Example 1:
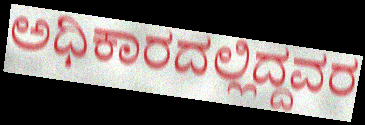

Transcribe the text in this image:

ಅಧಿಕಾರದಲ್ಲಿದ್ದವರ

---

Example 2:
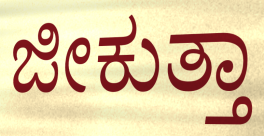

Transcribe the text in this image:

ಜೀಕುತ್ತಾ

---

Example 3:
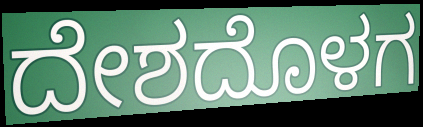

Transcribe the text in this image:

ದೇಶದೊಳಗ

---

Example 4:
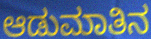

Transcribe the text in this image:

ಆಡುಮಾತಿನ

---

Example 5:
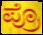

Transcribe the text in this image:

ಪ್ರೊ